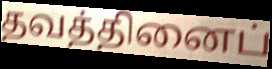
தவத்தினைப்